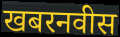
खबरनवीस